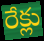
రేక్లు